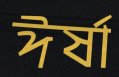
ঈৰ্ষা